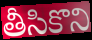
తీసికొని